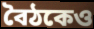
বৈঠকেও